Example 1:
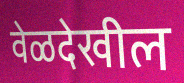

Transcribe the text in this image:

वेळदेखील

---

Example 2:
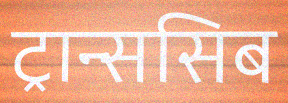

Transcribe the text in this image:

ट्रान्ससिब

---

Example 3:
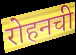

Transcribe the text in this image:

रोहनची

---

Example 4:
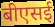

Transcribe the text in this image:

बीएसई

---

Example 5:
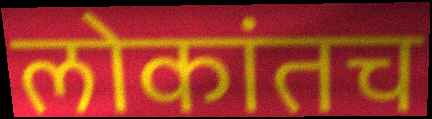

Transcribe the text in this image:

लोकांतच